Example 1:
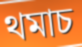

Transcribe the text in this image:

থমাচ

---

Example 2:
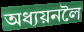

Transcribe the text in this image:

অধ্যয়নলৈ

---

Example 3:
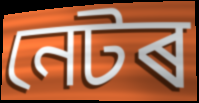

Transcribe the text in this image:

নেটৰ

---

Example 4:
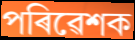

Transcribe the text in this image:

পৰিৱেশক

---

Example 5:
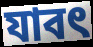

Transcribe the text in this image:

যাবৎ